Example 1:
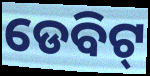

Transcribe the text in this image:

ଡେବିଟ୍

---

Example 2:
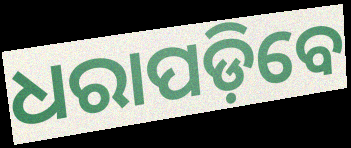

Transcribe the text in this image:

ଧରାପଡ଼ିବେ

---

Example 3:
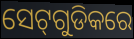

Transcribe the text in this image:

ସେଟ୍‌ଗୁଡିକରେ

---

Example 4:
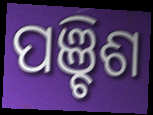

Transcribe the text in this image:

ପଞ୍ଚିଶ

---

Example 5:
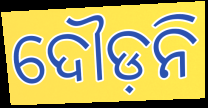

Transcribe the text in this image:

ଦୌଡ଼ନି